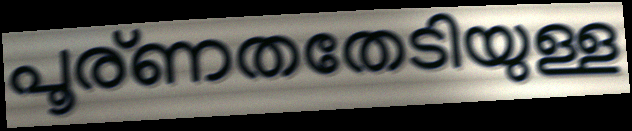
പൂര്ണതതേടിയുള്ള